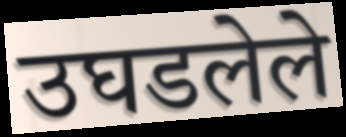
उघडलेले